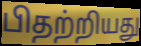
பிதற்றியது